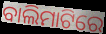
ବାଲିମାଟିରେ